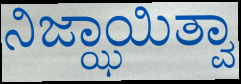
ನಿಜ್ಝಾಯಿತ್ವಾ